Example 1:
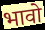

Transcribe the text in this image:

भावो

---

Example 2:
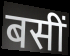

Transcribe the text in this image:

बसीं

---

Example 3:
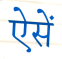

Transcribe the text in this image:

ऐसें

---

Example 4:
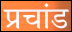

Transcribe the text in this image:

प्रचांड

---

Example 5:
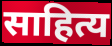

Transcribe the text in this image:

साहित्य